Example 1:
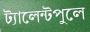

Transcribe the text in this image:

ট্যালেন্টপুলে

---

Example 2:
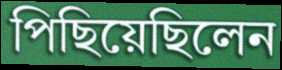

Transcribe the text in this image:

পিছিয়েছিলেন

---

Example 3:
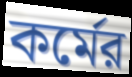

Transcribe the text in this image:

কর্মের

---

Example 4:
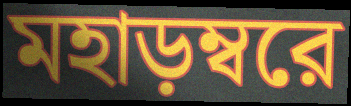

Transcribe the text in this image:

মহাড়ম্বরে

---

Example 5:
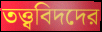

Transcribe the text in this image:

তত্ত্ববিদদের